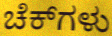
ಚೆಕ್‌ಗಳು